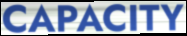
CAPACITY